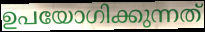
ഉപയോഗിക്കുന്നത്